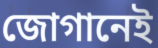
জোগানেই